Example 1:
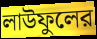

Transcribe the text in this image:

লাউফুলের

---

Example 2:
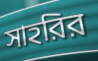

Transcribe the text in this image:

সাহরির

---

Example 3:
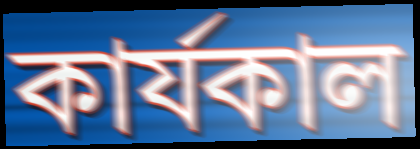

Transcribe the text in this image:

কার্যকাল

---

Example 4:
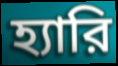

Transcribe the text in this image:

হ্যারি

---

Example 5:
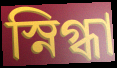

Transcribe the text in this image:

স্নিগ্ধা